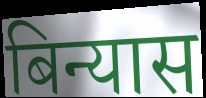
बिन्यास